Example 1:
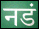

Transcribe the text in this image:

नडं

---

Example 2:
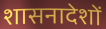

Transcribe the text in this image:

शासनादेशों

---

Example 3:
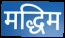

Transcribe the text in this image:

मद्धिम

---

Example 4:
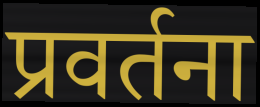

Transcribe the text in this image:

प्रवर्तना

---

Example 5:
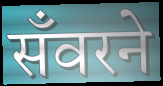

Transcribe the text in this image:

सँवरने